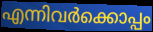
എന്നിവർക്കൊപ്പം